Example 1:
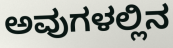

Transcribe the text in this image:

ಅವುಗಳಲ್ಲಿನ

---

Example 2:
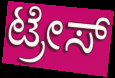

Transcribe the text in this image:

ಟ್ರೇಸ್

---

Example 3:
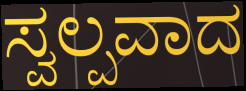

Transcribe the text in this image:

ಸ್ವಲ್ಪವಾದ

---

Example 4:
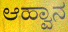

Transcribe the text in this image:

ಆಹ್ವಾನ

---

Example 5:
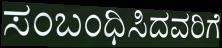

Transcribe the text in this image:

ಸಂಬಂಧಿಸಿದವರಿಗೆ